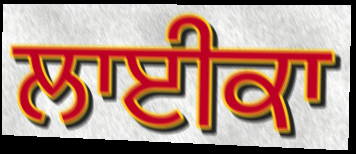
ਲਾਈਕਾ